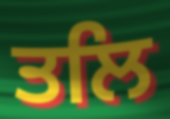
ਤਲਿ